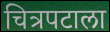
चित्रपटाला